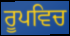
ਰੂਪਵਿਚ